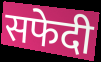
सफेदी